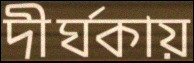
দীর্ঘকায়